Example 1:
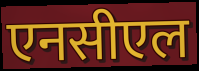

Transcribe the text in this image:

एनसीएल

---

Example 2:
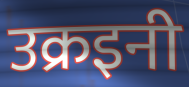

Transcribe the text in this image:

उक्रइनी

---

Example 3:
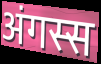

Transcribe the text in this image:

अंगस्स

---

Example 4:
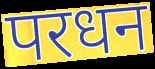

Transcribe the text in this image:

परधन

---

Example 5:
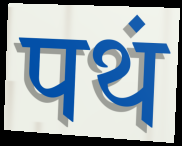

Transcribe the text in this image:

पथं